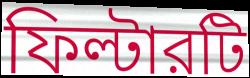
ফিল্টারটি